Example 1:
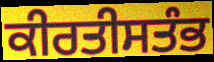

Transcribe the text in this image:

ਕੀਰਤੀਸਤੰਭ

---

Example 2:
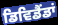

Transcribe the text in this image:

ਡਿਵਿਡੈਂਡਾਂ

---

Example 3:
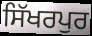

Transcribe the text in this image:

ਸਿੱਖਰਪੁਰ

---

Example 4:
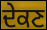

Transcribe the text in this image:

ਦੇਕਣ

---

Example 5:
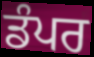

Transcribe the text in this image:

ਡੰਪਰ